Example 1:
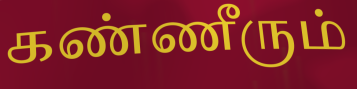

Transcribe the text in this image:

கண்ணீரும்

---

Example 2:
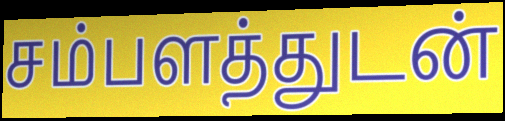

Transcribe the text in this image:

சம்பளத்துடன்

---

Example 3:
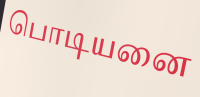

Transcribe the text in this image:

பொடியனை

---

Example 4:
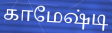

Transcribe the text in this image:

காமேஷ்டி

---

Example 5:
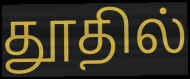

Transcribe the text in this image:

தூதில்